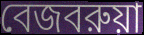
বেজবরুয়া